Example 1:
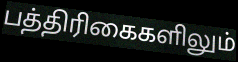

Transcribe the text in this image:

பத்திரிகைகளிலும்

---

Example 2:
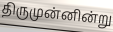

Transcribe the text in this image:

திருமுன்னின்று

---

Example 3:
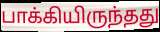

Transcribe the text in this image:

பாக்கியிருந்தது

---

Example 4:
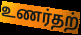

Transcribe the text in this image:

உணர்தற்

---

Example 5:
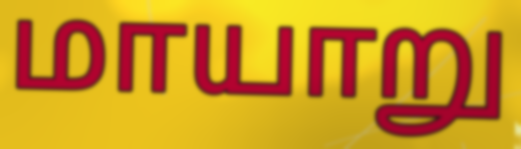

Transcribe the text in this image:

மாயாறு